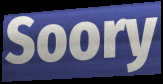
Soory